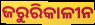
ଜରୁରିକାଳୀନ